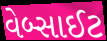
વેબ્સાઈટ